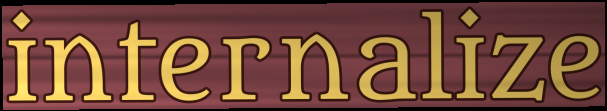
internalize